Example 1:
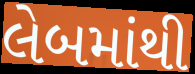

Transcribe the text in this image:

લેબમાંથી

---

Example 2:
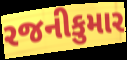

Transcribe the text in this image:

રજનીકુમાર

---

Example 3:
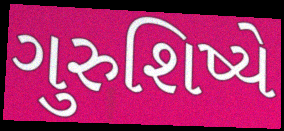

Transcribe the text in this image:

ગુરુશિષ્યે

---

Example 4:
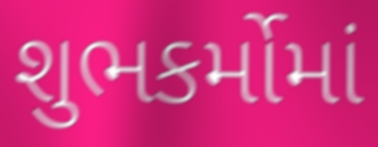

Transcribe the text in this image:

શુભકર્મોમાં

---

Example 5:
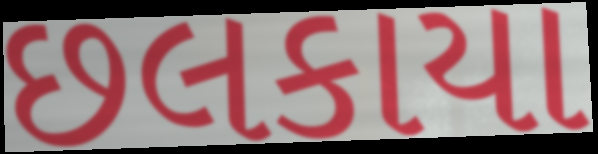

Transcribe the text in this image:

છલકાયા